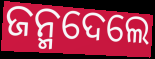
ଜନ୍ମଦେଲେ